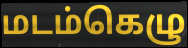
மடம்கெழு